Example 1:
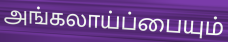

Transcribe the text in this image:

அங்கலாய்ப்பையும்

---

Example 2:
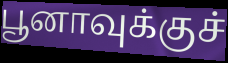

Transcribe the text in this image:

பூனாவுக்குச்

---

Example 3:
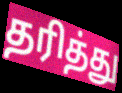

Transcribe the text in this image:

தரித்து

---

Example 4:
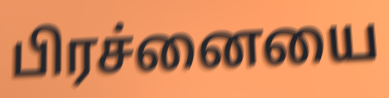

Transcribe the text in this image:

பிரச்னையை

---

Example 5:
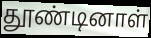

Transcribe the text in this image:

தூண்டினாள்